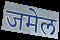
जमेल